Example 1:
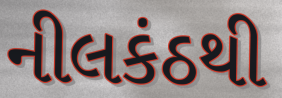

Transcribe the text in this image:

નીલકંઠથી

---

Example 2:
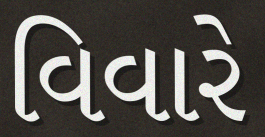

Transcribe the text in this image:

વિવારે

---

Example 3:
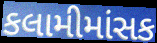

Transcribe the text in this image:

કલામીમાંસક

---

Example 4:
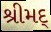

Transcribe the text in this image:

શ્રીમદ્‍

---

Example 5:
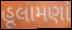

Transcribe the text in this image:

હૂલામણાં